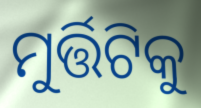
ମୁର୍ତ୍ତିଟିକୁ